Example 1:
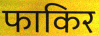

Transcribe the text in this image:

फाकिर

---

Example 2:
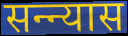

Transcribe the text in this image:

सन्न्यास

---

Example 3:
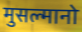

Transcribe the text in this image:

मुसल्मानो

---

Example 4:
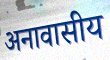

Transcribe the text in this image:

अनावासीय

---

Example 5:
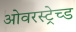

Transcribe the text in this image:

ओवरस्ट्रेच्ड